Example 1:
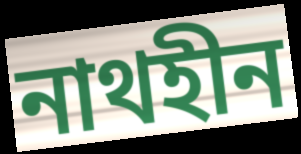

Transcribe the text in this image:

নাথহীন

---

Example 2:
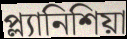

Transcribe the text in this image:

প্ল্যানিশিয়া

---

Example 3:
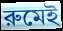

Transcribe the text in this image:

রুমেই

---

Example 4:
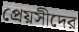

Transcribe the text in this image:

প্রেয়সীদের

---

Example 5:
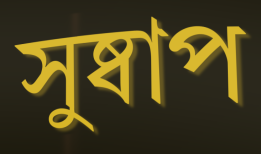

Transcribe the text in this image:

সুষ্বাপ